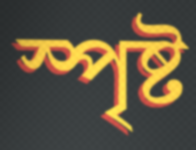
স্পৃষ্ট